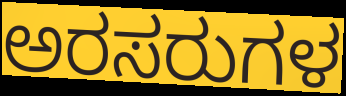
ಅರಸರುಗಳ